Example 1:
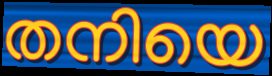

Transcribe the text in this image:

തനിയെ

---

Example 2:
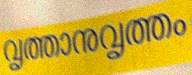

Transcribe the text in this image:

വൃത്താനുവൃത്തം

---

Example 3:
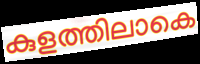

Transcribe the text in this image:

കുളത്തിലാകെ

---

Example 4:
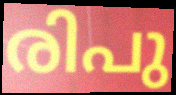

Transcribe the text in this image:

രിപു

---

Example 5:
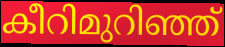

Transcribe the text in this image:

കീറിമുറിഞ്ഞ്